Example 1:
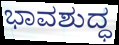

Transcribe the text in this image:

ಭಾವಶುದ್ಧ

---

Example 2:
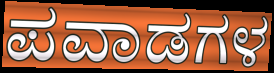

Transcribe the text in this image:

ಪವಾಡಗಳ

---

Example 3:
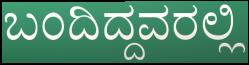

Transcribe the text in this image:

ಬಂದಿದ್ದವರಲ್ಲಿ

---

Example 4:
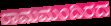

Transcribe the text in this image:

ರಾಮಮಂದಿರದ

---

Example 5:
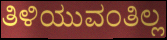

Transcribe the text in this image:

ತಿಳಿಯುವಂತಿಲ್ಲ